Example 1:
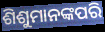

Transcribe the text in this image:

ଶିଶୁମାନଙ୍କପରି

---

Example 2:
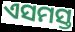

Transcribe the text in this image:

ଏସମସ୍ତ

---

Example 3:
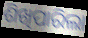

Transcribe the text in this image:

ଶିଖିପାରିଲା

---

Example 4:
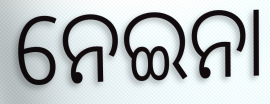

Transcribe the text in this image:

ନେଇନା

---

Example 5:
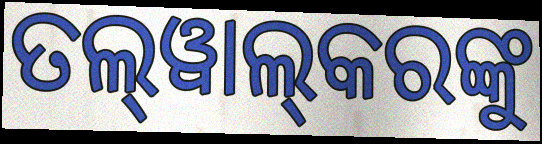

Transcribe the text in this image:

ତଲ୍‌ୱାଲ୍‌କରଙ୍କୁ